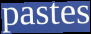
pastes